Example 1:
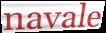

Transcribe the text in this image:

navale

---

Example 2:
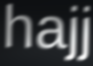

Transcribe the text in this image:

hajj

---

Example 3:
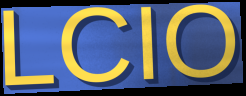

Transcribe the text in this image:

LCIO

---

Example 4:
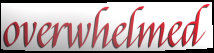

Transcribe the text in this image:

overwhelmed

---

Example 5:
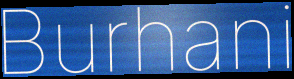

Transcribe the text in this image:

Burhani